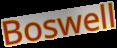
Boswell